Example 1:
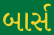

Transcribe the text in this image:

બાર્સ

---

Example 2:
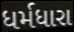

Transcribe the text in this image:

ધર્મધારા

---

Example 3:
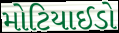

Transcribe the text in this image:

મોટિયાઈડો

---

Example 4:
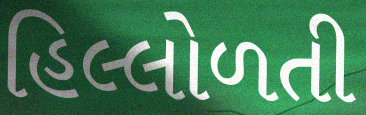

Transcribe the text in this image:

હિલ્લોળતી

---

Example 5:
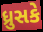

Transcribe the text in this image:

ધ્રુસકે